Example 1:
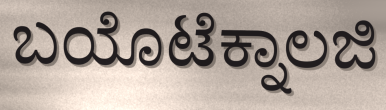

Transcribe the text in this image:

ಬಯೊಟೆಕ್ನಾಲಜಿ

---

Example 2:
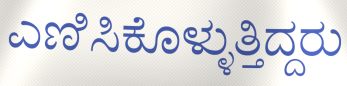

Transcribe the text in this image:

ಎಣಿಸಿಕೊಳ್ಳುತ್ತಿದ್ದರು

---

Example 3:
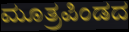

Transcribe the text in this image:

ಮೂತ್ರಪಿಂಡದ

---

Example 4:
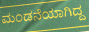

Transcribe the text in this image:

ಮಂಡನೆಯಾಗಿದ್ದ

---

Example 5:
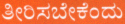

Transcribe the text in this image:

ತೀರಿಸಬೇಕೆಂದು